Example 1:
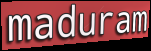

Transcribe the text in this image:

maduram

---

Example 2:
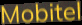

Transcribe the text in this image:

Mobitel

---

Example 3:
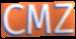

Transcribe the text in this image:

CMZ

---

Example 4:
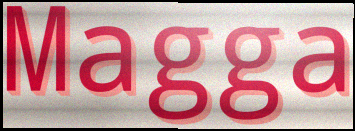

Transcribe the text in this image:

Magga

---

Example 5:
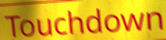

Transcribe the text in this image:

Touchdown